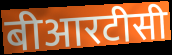
बीआरटीसी